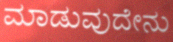
ಮಾಡುವುದೇನು